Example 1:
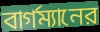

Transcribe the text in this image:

বার্গম্যানের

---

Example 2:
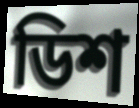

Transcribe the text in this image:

ডিশ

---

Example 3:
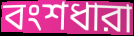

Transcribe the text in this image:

বংশধারা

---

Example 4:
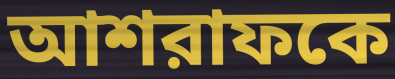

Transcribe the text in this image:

আশরাফকে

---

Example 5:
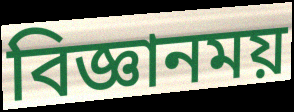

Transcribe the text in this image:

বিজ্ঞানময়